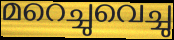
മറെച്ചുവെച്ചു